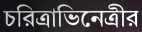
চরিত্রাভিনেত্রীর